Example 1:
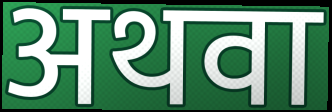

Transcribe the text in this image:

अथवा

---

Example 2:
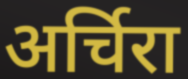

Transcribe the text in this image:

अर्चिरा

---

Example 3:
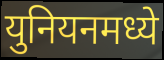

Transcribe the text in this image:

युनियनमध्ये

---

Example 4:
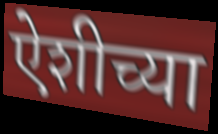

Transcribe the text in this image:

ऐशीच्या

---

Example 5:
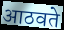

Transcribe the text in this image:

आठवते